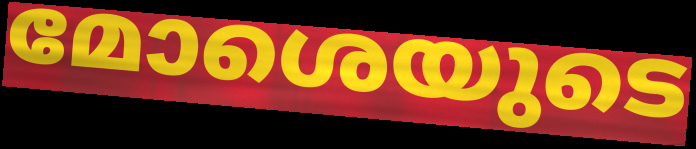
മോശെയുടെ